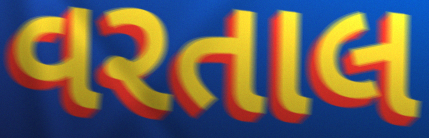
વરતાલ